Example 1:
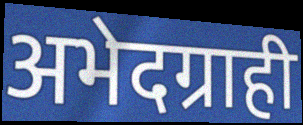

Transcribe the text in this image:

अभेदग्राही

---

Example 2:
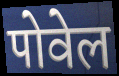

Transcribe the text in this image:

पोवेल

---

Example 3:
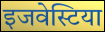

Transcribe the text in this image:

इजवेस्टिया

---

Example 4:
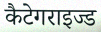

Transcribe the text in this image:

कैटेगराइज्ड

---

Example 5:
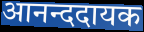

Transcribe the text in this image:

आनन्ददायक